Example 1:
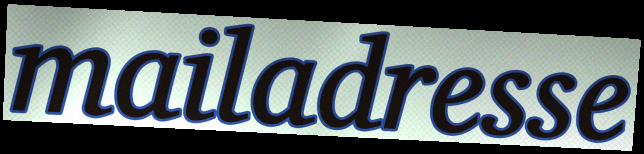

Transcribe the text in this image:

mailadresse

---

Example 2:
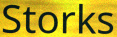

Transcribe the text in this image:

Storks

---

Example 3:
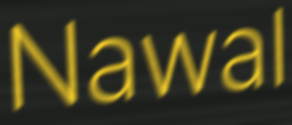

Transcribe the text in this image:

Nawal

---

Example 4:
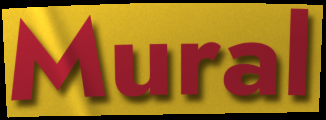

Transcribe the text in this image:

Mural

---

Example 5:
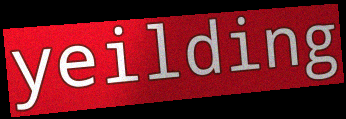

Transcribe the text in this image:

yeilding